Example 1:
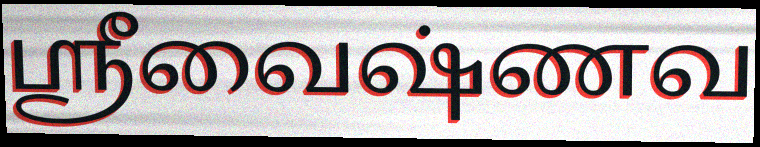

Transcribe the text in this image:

ஸ்ரீவைஷ்ணவ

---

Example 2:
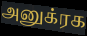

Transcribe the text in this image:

அனுக்ரக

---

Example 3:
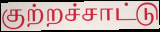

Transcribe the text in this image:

குற்றச்சாட்டு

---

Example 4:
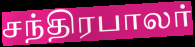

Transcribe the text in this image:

சந்திரபாலர்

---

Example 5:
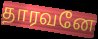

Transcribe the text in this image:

தாரவனே